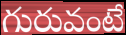
గురువంటే